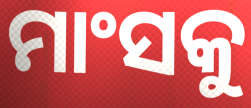
ମାଂସକୁ